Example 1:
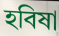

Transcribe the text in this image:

হবিষা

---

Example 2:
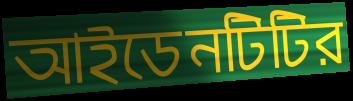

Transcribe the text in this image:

আইডেনটিটির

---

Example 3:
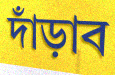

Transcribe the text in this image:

দাঁড়াব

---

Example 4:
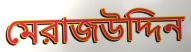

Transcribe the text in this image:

মেরাজউদ্দিন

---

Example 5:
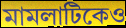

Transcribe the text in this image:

মামলাটিকেও